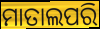
ମାତାଲପରି